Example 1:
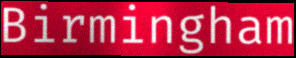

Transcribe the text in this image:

Birmingham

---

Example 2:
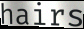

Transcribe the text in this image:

hairs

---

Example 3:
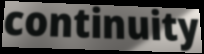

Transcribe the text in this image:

continuity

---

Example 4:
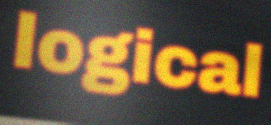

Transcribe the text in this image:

logical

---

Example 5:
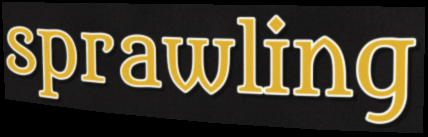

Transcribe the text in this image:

sprawling